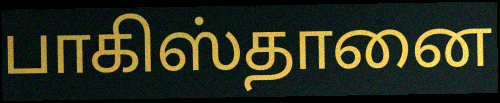
பாகிஸ்தானை